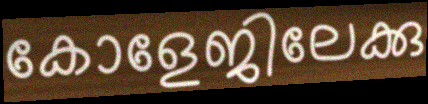
കോളേജിലേക്കു